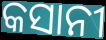
କସାନୀ